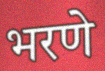
भरणे